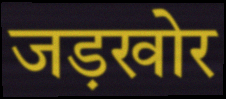
जड़खोर